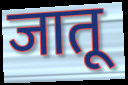
जातू